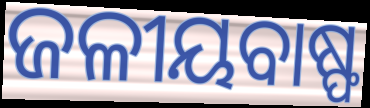
ଜଳୀୟବାଷ୍ଫ